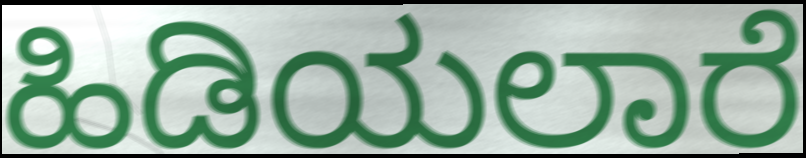
ಹಿಡಿಯಲಾರೆ